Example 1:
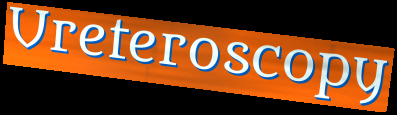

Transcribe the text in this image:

Ureteroscopy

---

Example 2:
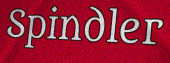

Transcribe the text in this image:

Spindler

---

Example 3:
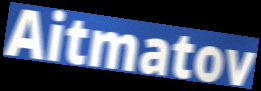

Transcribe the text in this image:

Aitmatov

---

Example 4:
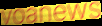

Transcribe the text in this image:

voanews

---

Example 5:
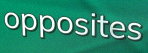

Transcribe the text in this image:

opposites